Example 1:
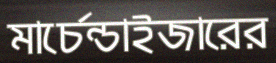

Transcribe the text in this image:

মার্চেন্ডাইজারের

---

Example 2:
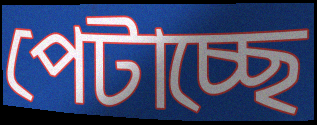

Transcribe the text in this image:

পেটাচ্ছে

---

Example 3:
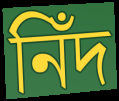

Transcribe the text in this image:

নিঁদ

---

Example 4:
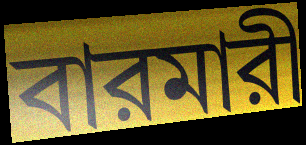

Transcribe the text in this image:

বারমারী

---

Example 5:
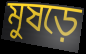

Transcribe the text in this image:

মুষড়ে